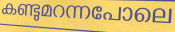
കണ്ടുമറന്നപോലെ